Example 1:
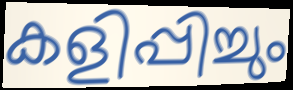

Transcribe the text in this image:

കളിപ്പിച്ചും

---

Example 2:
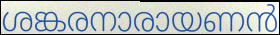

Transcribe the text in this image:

ശങ്കരനാരായണൻ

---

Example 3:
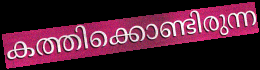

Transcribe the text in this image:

കത്തിക്കൊണ്ടിരുന്ന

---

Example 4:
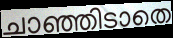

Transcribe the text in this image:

ചാഞ്ഞിടാതെ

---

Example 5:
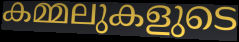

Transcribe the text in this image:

കമ്മലുകളുടെ